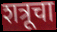
शत्रूचा